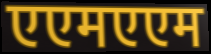
एएमएएम